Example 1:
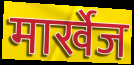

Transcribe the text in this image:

मार्खेज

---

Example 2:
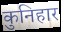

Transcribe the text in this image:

कुनिहार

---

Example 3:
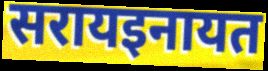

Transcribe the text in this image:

सरायइनायत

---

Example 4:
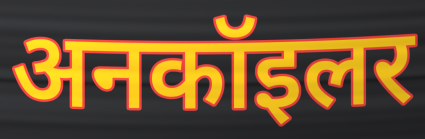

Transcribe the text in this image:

अनकॉइलर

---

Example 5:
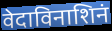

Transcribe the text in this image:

वेदाविनाशिनं